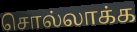
சொல்லாக்க